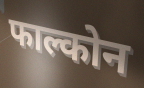
फाल्कोन